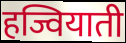
हज्वियाती